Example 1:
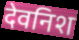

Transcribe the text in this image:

देवनिश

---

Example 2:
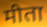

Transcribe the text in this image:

मीता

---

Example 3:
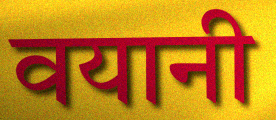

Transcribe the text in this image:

वयानी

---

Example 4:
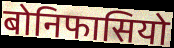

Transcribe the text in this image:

बोनिफासियो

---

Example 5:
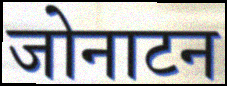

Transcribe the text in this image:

जोनाटन